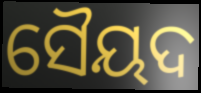
ସୈୟଦ